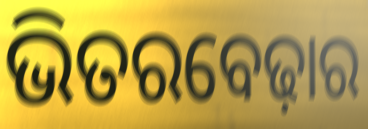
ଭିତରବେଢ଼ାର